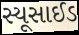
સ્યૂસાઈડ